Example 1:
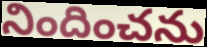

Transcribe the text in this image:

నిందించను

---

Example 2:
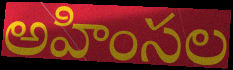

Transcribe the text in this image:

అహింసల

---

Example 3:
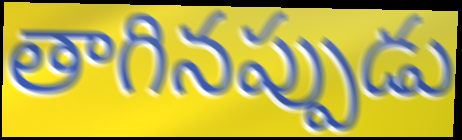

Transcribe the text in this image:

తాగినప్పుడు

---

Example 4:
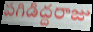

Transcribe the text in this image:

పగిడిద్దరాజు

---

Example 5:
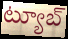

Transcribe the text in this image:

ట్యూబ్